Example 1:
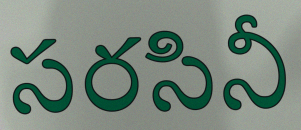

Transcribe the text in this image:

సరసినీ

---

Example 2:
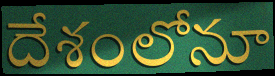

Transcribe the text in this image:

దేశంలోనూ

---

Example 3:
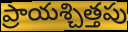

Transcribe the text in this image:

ప్రాయశ్చిత్తపు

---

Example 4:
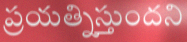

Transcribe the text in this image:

ప్రయత్నిస్తుందని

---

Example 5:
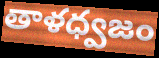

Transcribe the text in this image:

తాళధ్వజం